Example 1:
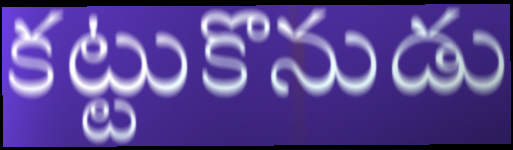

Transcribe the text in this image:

కట్టుకొనుడు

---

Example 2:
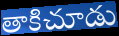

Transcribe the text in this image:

తాకిచూడు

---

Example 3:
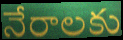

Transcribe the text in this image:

నేరాలకు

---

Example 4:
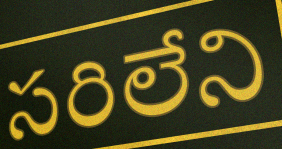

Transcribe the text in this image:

సరిలేని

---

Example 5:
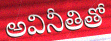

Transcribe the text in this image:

అవినీతితో